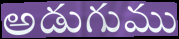
అడుగుము